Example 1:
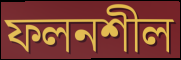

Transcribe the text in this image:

ফলনশীল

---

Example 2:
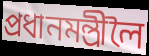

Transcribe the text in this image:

প্ৰধানমন্ত্ৰীলৈ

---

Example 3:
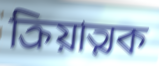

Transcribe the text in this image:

ক্ৰিয়াত্মক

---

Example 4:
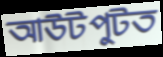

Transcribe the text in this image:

আউটপুটত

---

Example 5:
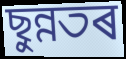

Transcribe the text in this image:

ছুন্নতৰ